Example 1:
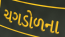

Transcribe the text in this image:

ચગડોળના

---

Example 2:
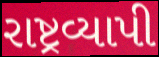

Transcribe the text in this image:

રાષ્ટ્રવ્યાપી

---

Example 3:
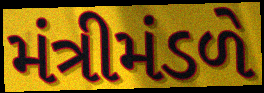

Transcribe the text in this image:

મંત્રીમંડળે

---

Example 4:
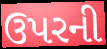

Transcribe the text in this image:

ઉપરની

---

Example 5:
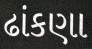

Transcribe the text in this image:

ઢાંકણા